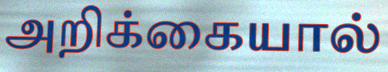
அறிக்கையால்